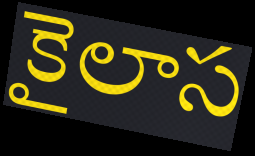
కైలాస